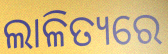
ଲାଳିତ୍ୟରେ